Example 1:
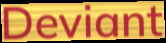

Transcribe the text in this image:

Deviant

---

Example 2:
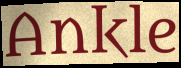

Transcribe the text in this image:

Ankle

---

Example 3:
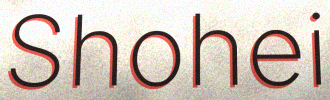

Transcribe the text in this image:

Shohei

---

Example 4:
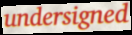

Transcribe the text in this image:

undersigned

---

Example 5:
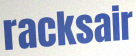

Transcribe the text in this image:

racksair